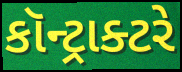
કૉન્ટ્રાક્ટરે